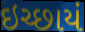
ઇચ્છાયં